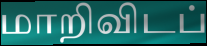
மாறிவிடப்